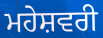
ਮਹੇਸ਼ਵਰੀ